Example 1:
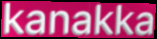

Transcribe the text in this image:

kanakka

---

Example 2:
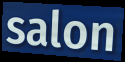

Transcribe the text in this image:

salon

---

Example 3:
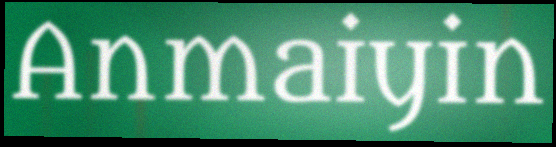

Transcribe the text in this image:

Anmaiyin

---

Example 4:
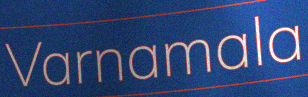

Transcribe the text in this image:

Varnamala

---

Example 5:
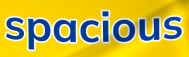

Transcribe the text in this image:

spacious